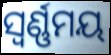
ସ୍ଵର୍ଣ୍ଣମୟ